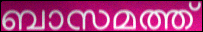
ബാസമത്ത്